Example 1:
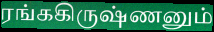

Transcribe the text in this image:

ரங்ககிருஷ்ணனும்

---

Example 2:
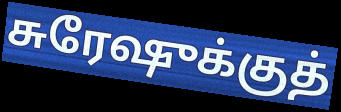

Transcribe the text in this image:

சுரேஷுக்குத்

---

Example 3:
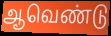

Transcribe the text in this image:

ஆவெண்டு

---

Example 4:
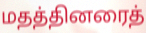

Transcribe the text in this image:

மதத்தினரைத்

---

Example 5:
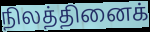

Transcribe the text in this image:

நிலத்தினைக்